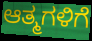
ಆತ್ಮಗಳಿಗೆ